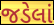
જડેલાં